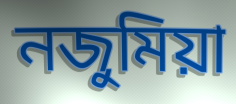
নজুমিয়া